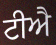
ਟੀਐ